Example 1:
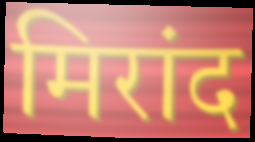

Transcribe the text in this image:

मिरांद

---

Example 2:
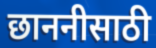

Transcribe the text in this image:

छाननीसाठी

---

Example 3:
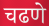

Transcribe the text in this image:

चढणे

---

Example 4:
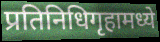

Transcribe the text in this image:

प्रतिनिधिगृहामध्ये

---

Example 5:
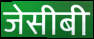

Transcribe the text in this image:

जेसीबी